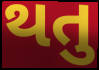
થતુ